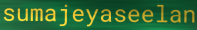
sumajeyaseelan